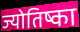
ज्योतिष्का